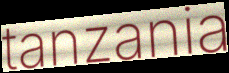
tanzania